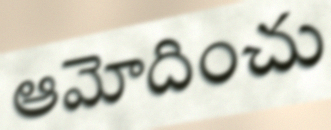
ఆమోదించు